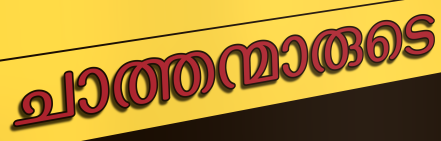
ചാത്തന്മാരുടെ